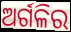
ଅର୍ଗଳିର